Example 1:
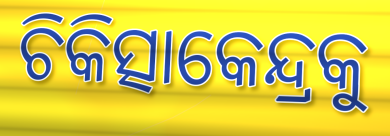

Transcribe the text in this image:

ଚିକିତ୍ସାକେନ୍ଦ୍ରକୁ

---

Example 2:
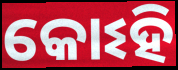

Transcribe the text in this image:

କୋଽହି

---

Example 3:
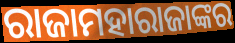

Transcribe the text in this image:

ରାଜାମହାରାଜାଙ୍କର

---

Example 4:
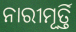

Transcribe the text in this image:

ନାରୀମୂର୍ତ୍ତି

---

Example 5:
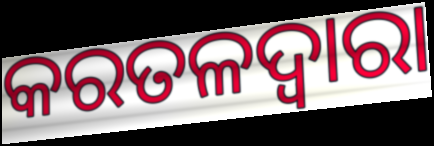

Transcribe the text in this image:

କରତଳଦ୍ୱାରା